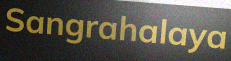
Sangrahalaya